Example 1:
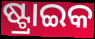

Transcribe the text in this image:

ଷ୍ଟ୍ରାଇକ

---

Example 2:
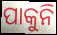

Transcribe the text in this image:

ପାକୁନି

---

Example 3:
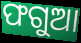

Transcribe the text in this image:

ଫଗୁଆ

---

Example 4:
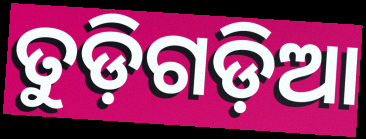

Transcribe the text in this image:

ତୁଡ଼ିଗଡ଼ିଆ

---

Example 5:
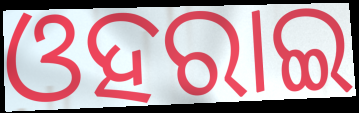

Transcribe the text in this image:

ଓହରାଇ